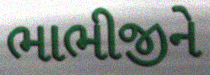
ભાભીજીને